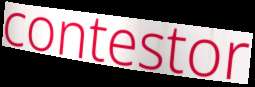
contestor